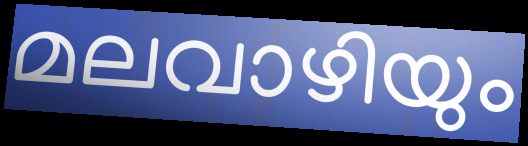
മലവാഴിയും